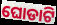
ଘୋଡାଟି